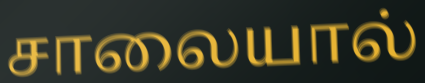
சாலையால்